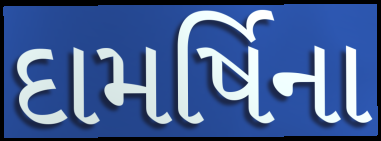
દામર્ષિના